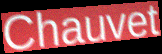
Chauvet